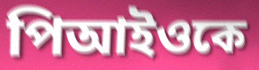
পিআইওকে